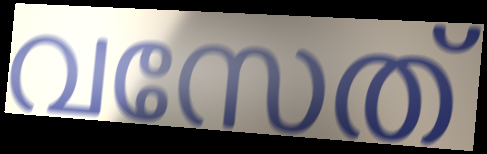
വസേത്